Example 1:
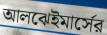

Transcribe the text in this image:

আলঝেইমার্সের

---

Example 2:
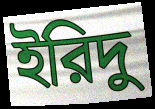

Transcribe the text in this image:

ইরিদু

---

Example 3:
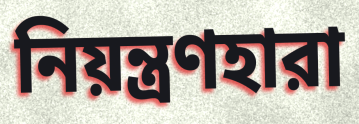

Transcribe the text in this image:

নিয়ন্ত্রণহারা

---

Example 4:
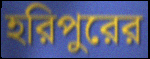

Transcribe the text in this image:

হরিপুরের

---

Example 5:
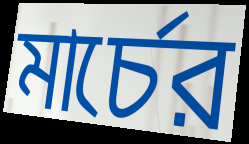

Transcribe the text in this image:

মার্চের